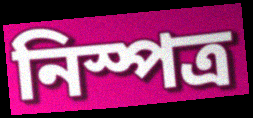
নিস্পত্র